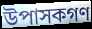
উপাসকগণ